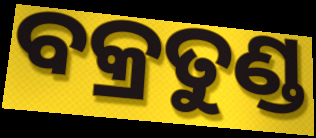
ବକ୍ରତୁଣ୍ଡ